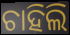
ଚାହିଲି